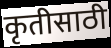
कृतीसाठी